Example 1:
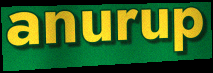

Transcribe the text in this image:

anurup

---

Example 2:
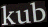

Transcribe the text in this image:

kub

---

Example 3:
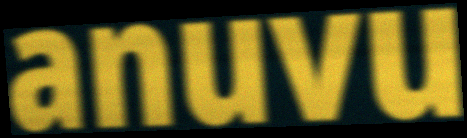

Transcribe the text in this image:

anuvu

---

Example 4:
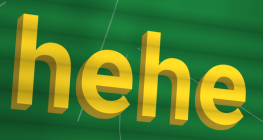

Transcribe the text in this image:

hehe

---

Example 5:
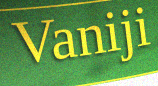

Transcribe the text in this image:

Vaniji